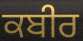
ਕਬੀਰ